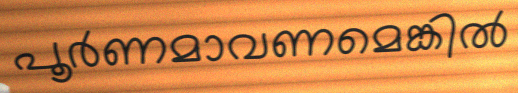
പൂർണമാവണമെങ്കിൽ